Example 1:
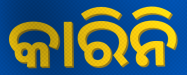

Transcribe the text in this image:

କାରିନି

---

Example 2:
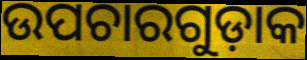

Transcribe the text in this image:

ଉପଚାରଗୁଡ଼ାକ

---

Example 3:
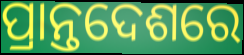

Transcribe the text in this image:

ପ୍ରାନ୍ତଦେଶରେ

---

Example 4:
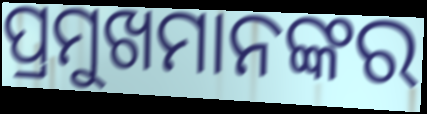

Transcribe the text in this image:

ପ୍ରମୁଖମାନଙ୍କର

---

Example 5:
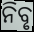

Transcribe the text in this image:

ନିବୃ